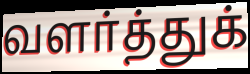
வளர்த்துக்